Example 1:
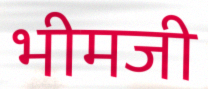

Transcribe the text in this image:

भीमजी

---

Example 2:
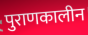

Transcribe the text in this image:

पुराणकालीन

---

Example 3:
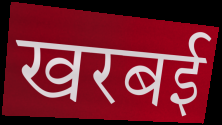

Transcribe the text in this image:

खरबई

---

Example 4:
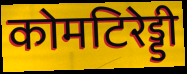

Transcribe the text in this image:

कोमटिरेड्डी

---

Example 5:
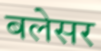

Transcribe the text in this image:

बलेसर